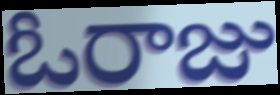
ఓరాజు